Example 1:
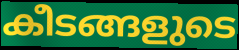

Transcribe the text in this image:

കീടങ്ങളുടെ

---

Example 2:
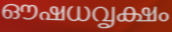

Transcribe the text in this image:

ഔഷധവൃക്ഷം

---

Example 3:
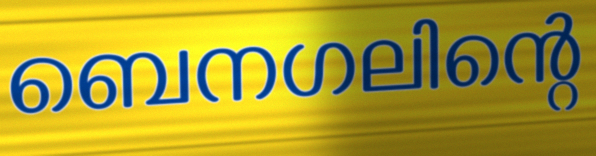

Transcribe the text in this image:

ബെനഗലിന്റെ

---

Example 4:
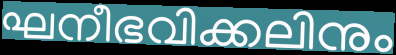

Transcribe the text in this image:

ഘനീഭവിക്കലിനും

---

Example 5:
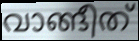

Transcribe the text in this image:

വാങ്ങീത്